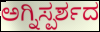
ಅಗ್ನಿಸ್ಪರ್ಶದ